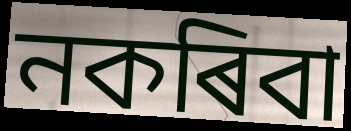
নকৰিবা